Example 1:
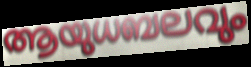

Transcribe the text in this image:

ആയുധബലവും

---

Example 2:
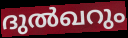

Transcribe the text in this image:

ദുൽഖറും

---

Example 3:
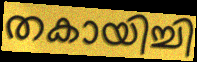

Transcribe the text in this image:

തകായിച്ചി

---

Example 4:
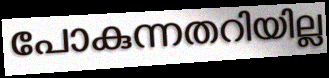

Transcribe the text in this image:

പോകുന്നതറിയില്ല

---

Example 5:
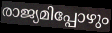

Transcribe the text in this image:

രാജ്യമിപ്പോഴും